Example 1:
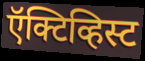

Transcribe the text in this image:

ऍक्टिव्हिस्ट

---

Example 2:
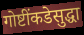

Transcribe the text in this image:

गोष्टींकडेसुद्धा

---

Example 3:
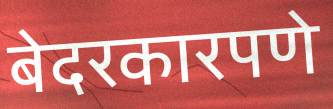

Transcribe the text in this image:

बेदरकारपणे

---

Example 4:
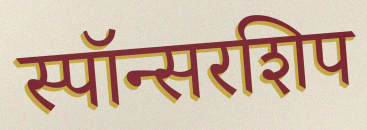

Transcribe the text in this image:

स्पॉन्सरशिप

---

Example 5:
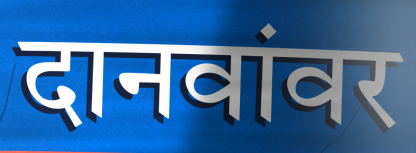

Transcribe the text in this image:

दानवांवर